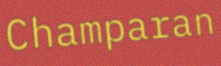
Champaran